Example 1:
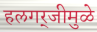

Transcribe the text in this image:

हलगर्जीमुळे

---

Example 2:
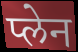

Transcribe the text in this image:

प्लेन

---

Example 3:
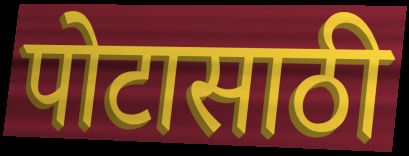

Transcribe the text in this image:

पोटासाठी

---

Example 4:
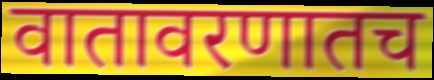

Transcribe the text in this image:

वातावरणातच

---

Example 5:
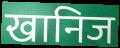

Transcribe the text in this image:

खानिज